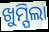
ଖୁମ୍ପିଲା